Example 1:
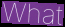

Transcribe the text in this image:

What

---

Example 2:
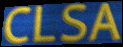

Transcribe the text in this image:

CLSA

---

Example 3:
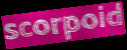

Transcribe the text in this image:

scorpoid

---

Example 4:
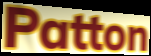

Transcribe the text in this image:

Patton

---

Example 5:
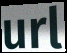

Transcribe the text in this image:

url